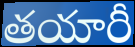
తయారీ